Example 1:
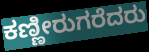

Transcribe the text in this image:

ಕಣ್ಣೀರುಗರೆದರು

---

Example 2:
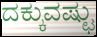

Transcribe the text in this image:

ದಕ್ಕುವಷ್ಟು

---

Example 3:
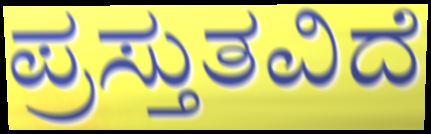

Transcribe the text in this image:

ಪ್ರಸ್ತುತವಿದೆ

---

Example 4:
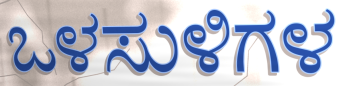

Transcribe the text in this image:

ಒಳಸುಳಿಗಳ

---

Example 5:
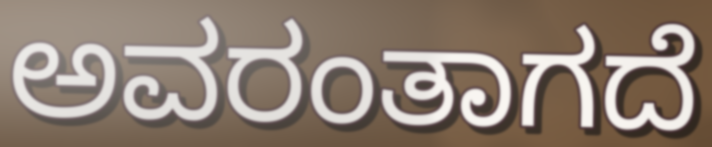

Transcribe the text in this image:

ಅವರಂತಾಗದೆ